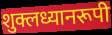
शुक्लध्यानरूपी